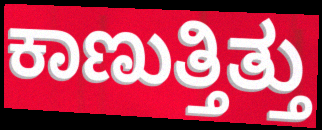
ಕಾಣುತ್ತಿತ್ತು